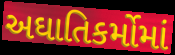
અઘાતિકર્મોમાં